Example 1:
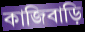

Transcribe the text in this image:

কাজিবাড়ি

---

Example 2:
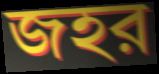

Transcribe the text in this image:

জহর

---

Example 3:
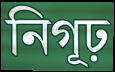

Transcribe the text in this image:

নিগূঢ়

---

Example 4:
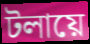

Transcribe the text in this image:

টলায়ে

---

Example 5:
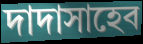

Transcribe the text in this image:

দাদাসাহেব